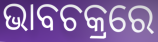
ଭାବଚକ୍ରରେ